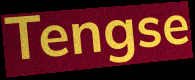
Tengse